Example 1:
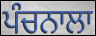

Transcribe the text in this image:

ਪੰਚਨਾਲਾ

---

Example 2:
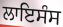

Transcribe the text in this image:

ਲਾਇਸੰਸ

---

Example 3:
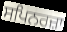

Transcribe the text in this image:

ਸਪਿਨਰਜ਼ਾ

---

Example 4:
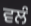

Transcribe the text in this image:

ਵਲੰ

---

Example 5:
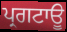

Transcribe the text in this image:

ਪ੍ਰਗਟਾਊ